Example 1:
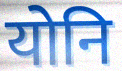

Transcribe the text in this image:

योनि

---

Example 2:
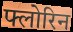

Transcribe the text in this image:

फ्लोरिन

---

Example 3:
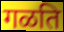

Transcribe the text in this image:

गळति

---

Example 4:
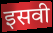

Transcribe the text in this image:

इसवी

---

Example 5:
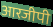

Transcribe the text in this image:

आरजीपी